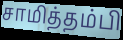
சாமித்தம்பி